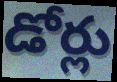
డోర్లు